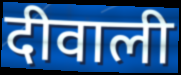
दीवाली